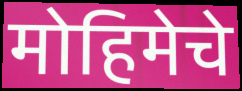
मोहिमेचे